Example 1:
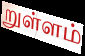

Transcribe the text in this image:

றுள்ளம்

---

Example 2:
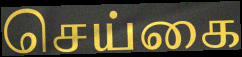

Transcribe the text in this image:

செய்கை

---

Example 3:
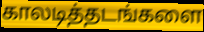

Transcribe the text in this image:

காலடித்தடங்களை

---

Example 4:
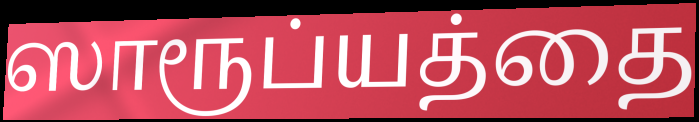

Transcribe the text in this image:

ஸாரூப்யத்தை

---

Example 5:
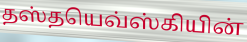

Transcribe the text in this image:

தஸ்தயெவ்ஸ்கியின்